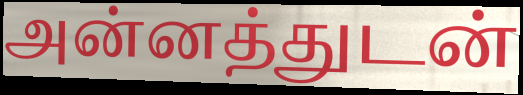
அன்னத்துடன்